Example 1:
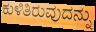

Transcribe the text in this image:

ಕುಳಿತಿರುವುದನ್ನು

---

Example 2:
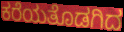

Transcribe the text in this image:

ಕರೆಯತೊಡಗಿದ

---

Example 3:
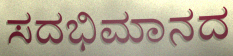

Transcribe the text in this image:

ಸದಭಿಮಾನದ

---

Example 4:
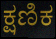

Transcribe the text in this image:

ಕ್ಷಣಿಕ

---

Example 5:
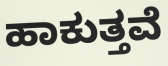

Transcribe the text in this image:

ಹಾಕುತ್ತವೆ